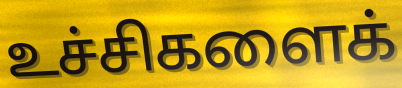
உச்சிகளைக்